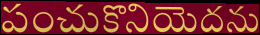
పంచుకొనియెదను